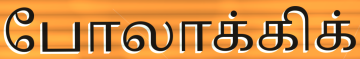
போலாக்கிக்